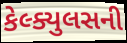
કેલ્ક્યુલસની